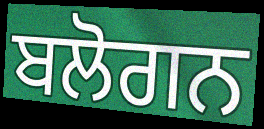
ਬਲੋਗਨ